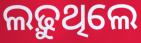
ଲଢ଼ୁଥିଲେ